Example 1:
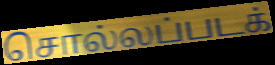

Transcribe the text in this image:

சொல்லப்படக்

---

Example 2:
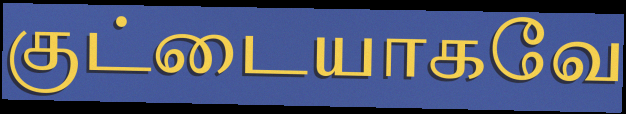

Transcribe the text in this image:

குட்டையாகவே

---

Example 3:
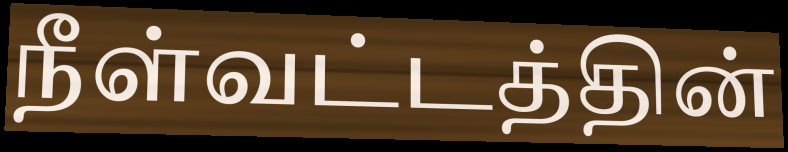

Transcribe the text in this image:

நீள்வட்டத்தின்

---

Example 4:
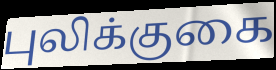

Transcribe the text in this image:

புலிக்குகை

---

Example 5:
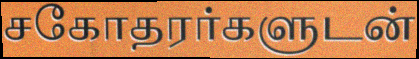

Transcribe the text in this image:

சகோதரர்களுடன்